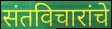
संतविचारांचे